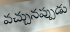
వచ్చునప్పుడు